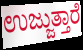
ಉಜ್ಜುತ್ತಾರೆ